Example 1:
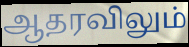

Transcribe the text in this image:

ஆதரவிலும்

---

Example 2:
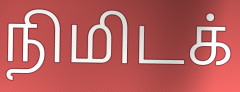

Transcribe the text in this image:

நிமிடக்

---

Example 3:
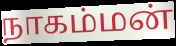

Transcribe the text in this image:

நாகம்மன்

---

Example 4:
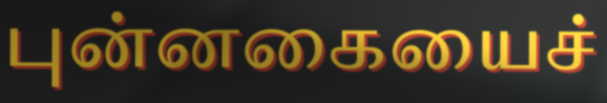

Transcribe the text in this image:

புன்னகையைச்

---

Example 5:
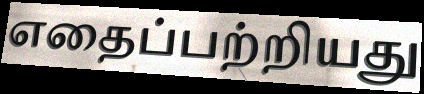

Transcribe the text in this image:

எதைப்பற்றியது